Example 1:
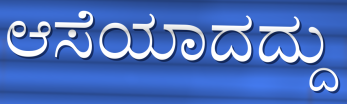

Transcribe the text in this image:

ಆಸೆಯಾದದ್ದು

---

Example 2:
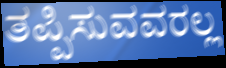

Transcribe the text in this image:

ತಪ್ಪಿಸುವವರಲ್ಲ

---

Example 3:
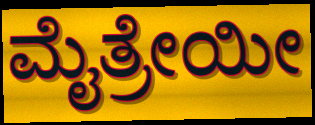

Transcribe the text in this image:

ಮೈತ್ರೇಯೀ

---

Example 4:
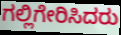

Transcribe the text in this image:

ಗಲ್ಲಿಗೇರಿಸಿದರು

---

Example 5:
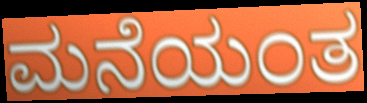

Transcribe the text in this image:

ಮನೆಯಂತ